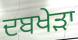
ਦਬਖੇੜਾ